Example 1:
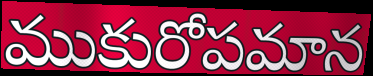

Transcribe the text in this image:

ముకురోపమాన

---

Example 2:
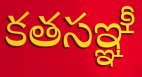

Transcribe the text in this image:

కతసఞ్ఞీ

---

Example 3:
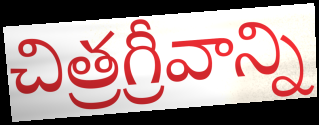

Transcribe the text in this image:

చిత్రగ్రీవాన్ని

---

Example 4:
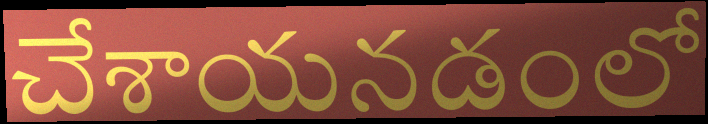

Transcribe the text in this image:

చేశాయనడంలో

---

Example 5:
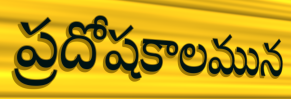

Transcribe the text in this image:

ప్రదోషకాలమున